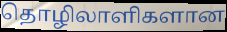
தொழிலாளிகளான